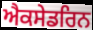
ਐਕਸੇਡਰਿਨ